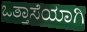
ಒತ್ತಾಸೆಯಾಗಿ